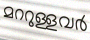
മററുള്ളവർ